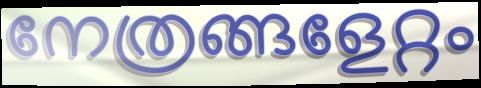
നേത്രങ്ങളേറ്റം